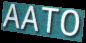
AATO